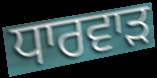
ਧਾਰਵਾੜ